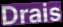
Drais